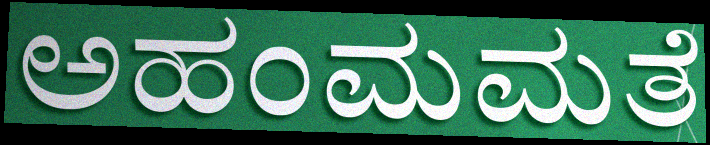
ಅಹಂಮಮತೆ